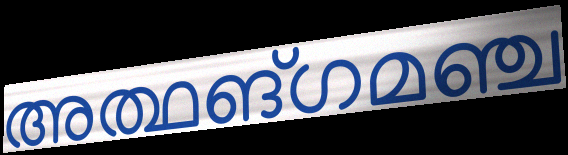
അത്ഥങ്ഗമഞ്ച